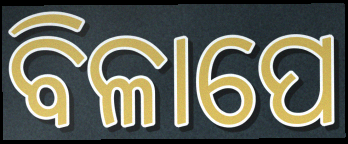
ବିଳାପେ